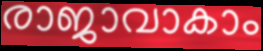
രാജാവാകാം